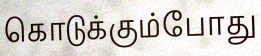
கொடுக்கும்போது